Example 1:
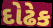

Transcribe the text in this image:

દોઢેક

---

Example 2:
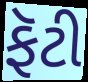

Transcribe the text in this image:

ફૅટી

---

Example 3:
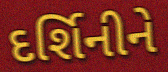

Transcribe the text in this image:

દર્શિનીને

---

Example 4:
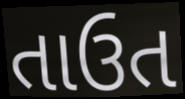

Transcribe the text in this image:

તાઉત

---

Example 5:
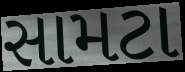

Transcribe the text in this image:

સામટા